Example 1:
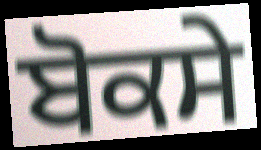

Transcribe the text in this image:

ਬੋਕਸੇ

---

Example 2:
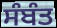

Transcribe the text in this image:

ਸੰਬੰਤ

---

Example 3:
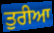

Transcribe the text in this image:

ਤੁਰੀਆ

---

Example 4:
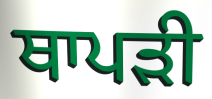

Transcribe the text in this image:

ਥਾਪੜੀ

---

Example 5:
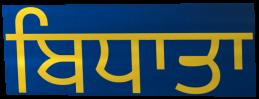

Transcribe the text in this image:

ਬਿਧਾਤਾ